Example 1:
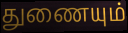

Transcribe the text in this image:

துணையும்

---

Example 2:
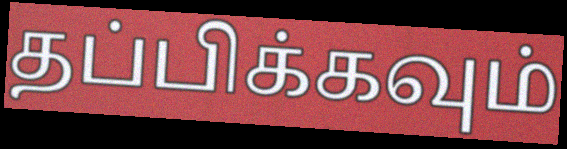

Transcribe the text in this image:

தப்பிக்கவும்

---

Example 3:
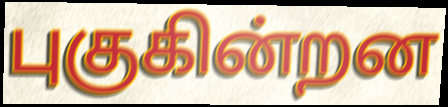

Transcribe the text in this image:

புகுகின்றன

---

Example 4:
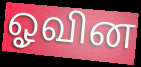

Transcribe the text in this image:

ஓவின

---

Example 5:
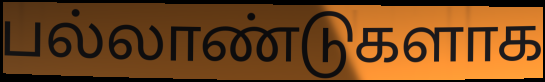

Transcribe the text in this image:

பல்லாண்டுகளாக